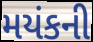
મયંકની